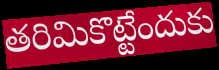
తరిమికొట్టేందుకు